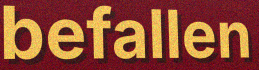
befallen